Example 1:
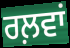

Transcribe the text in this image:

ਰਲ਼ਵਾਂ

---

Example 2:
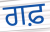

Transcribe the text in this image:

ਗਫ਼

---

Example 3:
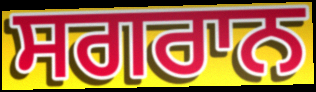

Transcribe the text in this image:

ਸਗਰਾਨ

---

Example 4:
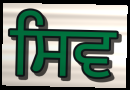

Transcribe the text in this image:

ਸਿਵ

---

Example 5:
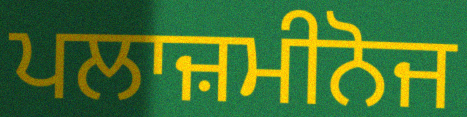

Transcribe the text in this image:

ਪਲਾਜ਼ਮੀਨੋਜ